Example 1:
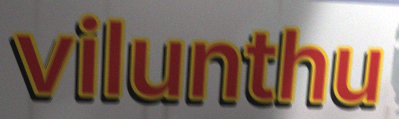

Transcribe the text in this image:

vilunthu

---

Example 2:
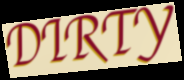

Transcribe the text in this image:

DIRTY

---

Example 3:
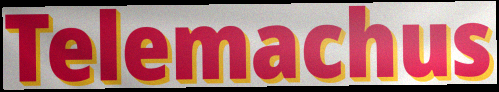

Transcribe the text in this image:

Telemachus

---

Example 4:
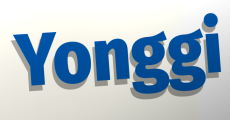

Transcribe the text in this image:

Yonggi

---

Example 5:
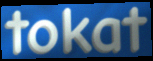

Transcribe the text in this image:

tokat